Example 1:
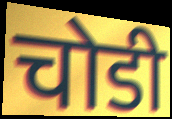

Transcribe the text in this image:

चोडी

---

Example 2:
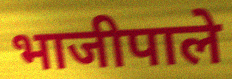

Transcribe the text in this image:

भाजीपाले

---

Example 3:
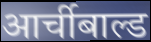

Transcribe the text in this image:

आर्चीबाल्ड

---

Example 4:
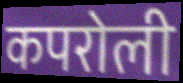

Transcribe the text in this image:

कपरोली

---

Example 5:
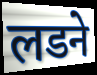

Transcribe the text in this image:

लडने